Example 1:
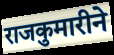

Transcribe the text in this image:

राजकुमारीने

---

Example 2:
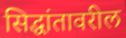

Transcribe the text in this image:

सिद्धांतावरील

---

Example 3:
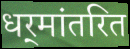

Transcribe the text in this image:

धर्मांतरित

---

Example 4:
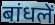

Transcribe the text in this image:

बांधलें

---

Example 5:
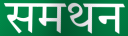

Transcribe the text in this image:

समथन